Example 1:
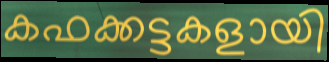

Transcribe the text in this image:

കഫക്കട്ടകളായി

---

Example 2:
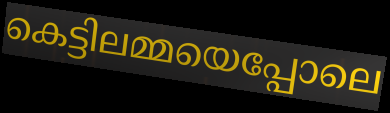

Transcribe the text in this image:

കെട്ടിലമ്മയെപ്പോലെ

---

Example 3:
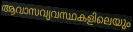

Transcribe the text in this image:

ആവാസവ്യവസ്ഥകളിലെയും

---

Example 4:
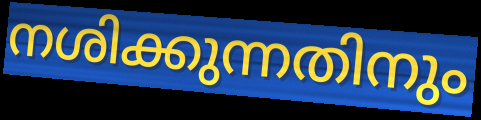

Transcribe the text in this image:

നശിക്കുന്നതിനും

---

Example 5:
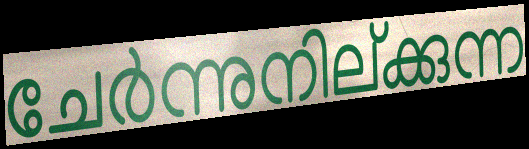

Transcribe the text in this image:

ചേർന്നുനില്ക്കുന്ന